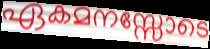
ഏകമനസ്സോടെ